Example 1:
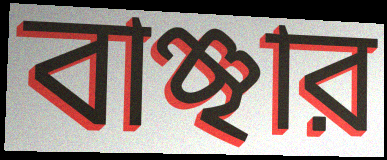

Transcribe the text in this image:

বাঞ্ছার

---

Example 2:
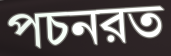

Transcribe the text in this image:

পচনরত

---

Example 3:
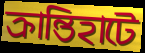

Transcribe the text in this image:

ক্রান্তিহাটে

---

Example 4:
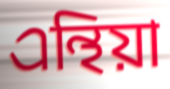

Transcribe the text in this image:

এন্থিয়া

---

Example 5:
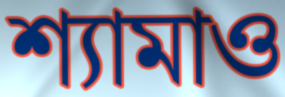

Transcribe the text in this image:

শ্যামাও